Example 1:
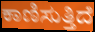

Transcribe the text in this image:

ಕಾಣಿಸುತ್ತಿದೆ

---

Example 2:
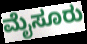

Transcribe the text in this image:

ಮೈಸೂರು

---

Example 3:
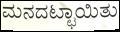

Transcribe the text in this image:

ಮನದಟ್ಟಾಯಿತು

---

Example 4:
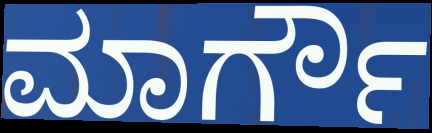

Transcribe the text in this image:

ಮಾರ್ಗೌ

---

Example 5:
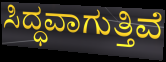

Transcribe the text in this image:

ಸಿದ್ಧವಾಗುತ್ತಿವೆ